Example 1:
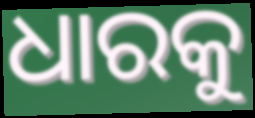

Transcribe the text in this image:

ଧାରକୁ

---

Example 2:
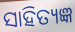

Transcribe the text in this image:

ସାହିତ୍ୟଜ୍ଞ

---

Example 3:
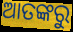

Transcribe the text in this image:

ଆତଙ୍କରୁ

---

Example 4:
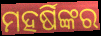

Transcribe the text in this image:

ମହର୍ଷିଙ୍କର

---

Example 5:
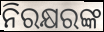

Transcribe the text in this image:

ନିରକ୍ଷରଙ୍କ